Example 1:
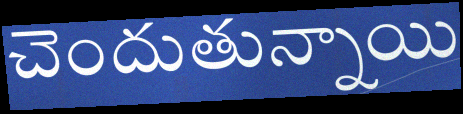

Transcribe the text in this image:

చెందుతున్నాయి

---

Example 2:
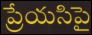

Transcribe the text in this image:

ప్రేయసిపై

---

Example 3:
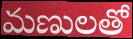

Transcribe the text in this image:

మణులతో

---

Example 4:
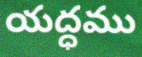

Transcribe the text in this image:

యద్ధము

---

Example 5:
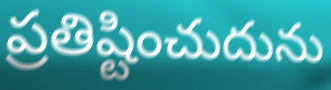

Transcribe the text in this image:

ప్రతిష్టించుదును